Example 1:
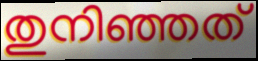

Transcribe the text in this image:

തുനിഞ്ഞത്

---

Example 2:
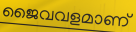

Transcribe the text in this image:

ജൈവവളമാണ്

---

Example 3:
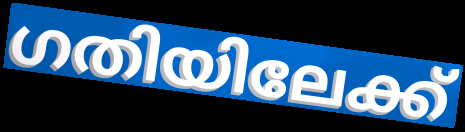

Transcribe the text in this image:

ഗതിയിലേക്ക്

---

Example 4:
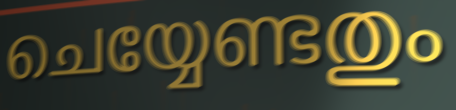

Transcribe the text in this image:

ചെയ്യേണ്ടതും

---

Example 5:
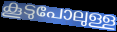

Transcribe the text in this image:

കൂടുപോലുള്ള